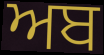
ਅਬ